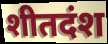
शीतदंश